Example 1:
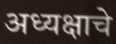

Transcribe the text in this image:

अध्यक्षाचे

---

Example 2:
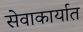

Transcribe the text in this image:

सेवाकार्यात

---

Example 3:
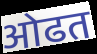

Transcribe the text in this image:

ओढत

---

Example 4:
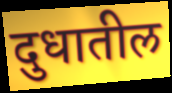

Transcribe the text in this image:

दुधातील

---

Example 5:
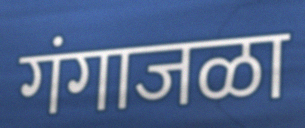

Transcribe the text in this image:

गंगाजळा